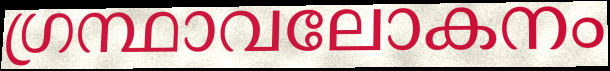
ഗ്രന്ഥാവലോകനം